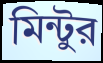
মিন্টুর